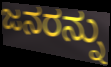
ಜನರನ್ನು